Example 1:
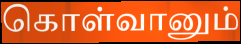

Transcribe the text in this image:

கொள்வானும்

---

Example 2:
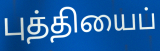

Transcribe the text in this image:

புத்தியைப்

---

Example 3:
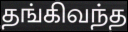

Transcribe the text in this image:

தங்கிவந்த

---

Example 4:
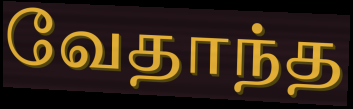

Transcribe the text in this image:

வேதாந்த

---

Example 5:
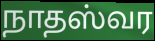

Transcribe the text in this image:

நாதஸ்வர